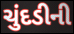
ચુંદડીની